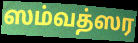
ஸம்வத்ஸர